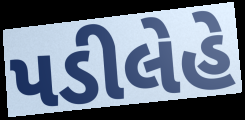
પડીલેહે